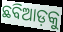
ଛବିଆଡ଼କୁ